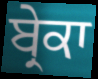
ਬ੍ਰੇਕਾ